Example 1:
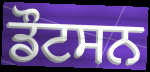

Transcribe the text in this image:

ਡੌਟਸਨ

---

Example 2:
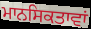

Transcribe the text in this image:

ਮਾਨਸਿਕਤਾਵਾਂ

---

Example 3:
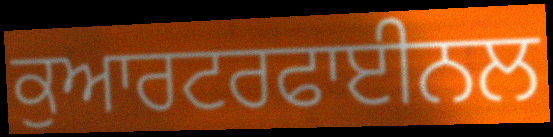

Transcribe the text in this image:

ਕੁਆਰਟਰਫਾਈਨਲ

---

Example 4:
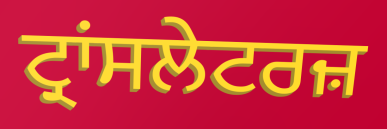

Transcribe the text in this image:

ਟ੍ਰਾਂਸਲੇਟਰਜ਼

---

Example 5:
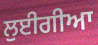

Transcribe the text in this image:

ਲੁਈਗੀਆ